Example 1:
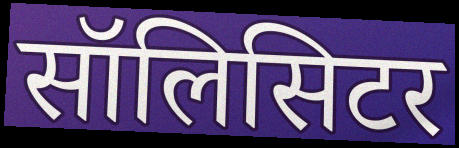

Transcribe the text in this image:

सॉलिसिटर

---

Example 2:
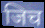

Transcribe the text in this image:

जिच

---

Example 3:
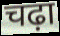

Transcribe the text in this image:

चढ़ा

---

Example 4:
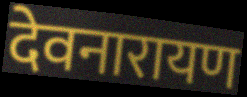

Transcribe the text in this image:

देवनारायण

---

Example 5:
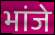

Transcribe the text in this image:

भांजे